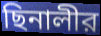
ছিনালীর